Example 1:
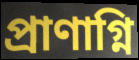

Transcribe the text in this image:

প্রাণাগ্নি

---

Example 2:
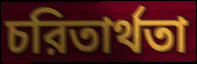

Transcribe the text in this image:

চরিতার্থতা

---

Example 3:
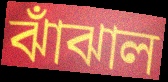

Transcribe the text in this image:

ঝাঁঝাল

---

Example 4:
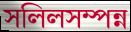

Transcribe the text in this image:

সলিলসম্পন্ন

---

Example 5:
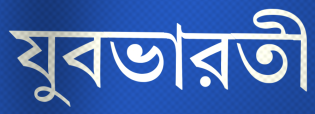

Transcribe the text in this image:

যুবভারতী